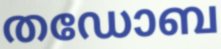
തഡോബ